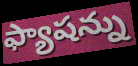
ఫ్యాషన్ను